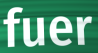
fuer